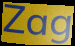
Zag